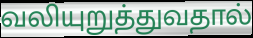
வலியுறுத்துவதால்